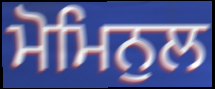
ਮੋਮਿਨੁਲ